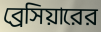
ব্রেসিয়ারের